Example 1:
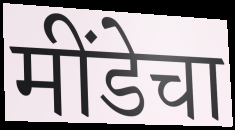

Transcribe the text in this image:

मींडेचा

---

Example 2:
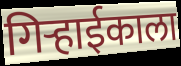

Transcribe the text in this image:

गिर्‍हाईकाला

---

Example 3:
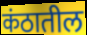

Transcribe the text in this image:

कंठातील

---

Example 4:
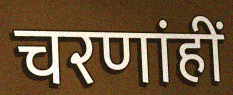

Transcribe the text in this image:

चरणांहीं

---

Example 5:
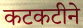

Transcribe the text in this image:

कटकटीने